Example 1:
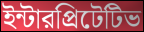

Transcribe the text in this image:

ইন্টারপ্রিটেটিভ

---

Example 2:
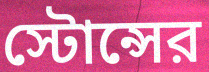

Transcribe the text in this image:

স্টোন্সের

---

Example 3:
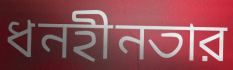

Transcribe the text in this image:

ধনহীনতার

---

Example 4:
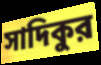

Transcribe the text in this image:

সাদিকুর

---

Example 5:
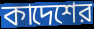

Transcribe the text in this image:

কাদেশের